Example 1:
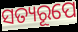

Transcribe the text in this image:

ସତ୍ୟରୂପେ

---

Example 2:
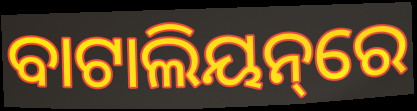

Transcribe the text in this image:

ବାଟାଲିୟନ୍‌ରେ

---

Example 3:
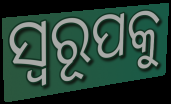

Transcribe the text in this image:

ସ୍ବରୂପକୁ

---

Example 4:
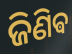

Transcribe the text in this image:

ଜିଣିଵ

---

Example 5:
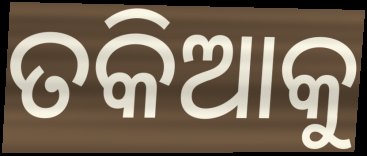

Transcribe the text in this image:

ତକିଆକୁ